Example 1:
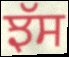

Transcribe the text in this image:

ਝੱਸ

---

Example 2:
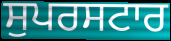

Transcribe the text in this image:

ਸੁਪਰਸਟਾਰ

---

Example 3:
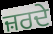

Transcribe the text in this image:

ਜ਼ਰਦੇ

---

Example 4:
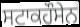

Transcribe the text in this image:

ਸਟਾਕਹੌਸੇਨ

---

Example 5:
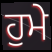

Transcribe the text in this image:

ਹੁਮੇ